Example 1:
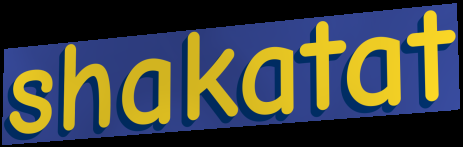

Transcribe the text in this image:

shakatat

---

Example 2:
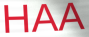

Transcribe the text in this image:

HAA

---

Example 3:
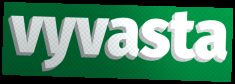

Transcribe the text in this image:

vyvasta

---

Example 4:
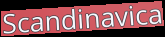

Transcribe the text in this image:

Scandinavica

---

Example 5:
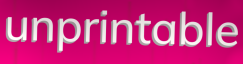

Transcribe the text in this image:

unprintable